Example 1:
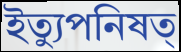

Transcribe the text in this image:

ইত্যুপনিষত্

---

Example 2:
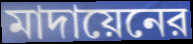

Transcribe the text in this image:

মাদায়েনের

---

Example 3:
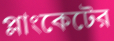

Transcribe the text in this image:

প্লাংকেটের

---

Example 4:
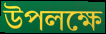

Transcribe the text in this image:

উপলক্ষে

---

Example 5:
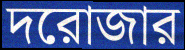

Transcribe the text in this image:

দরোজার